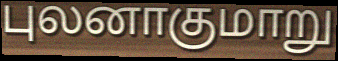
புலனாகுமாறு